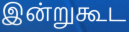
இன்றுகூட